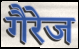
गैरेज